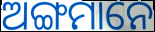
ଅଙ୍ଗମାନେ